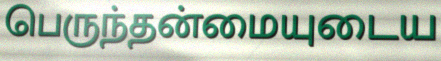
பெருந்தன்மையுடைய